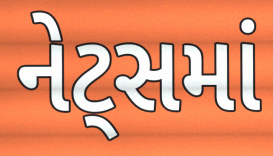
નેટ્સમાં